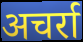
अचर्रा